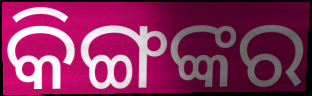
କିଙ୍ଗଙ୍କର